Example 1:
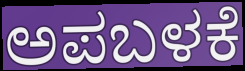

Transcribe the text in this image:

ಅಪಬಳಕೆ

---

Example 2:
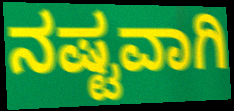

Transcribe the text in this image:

ನಷ್ಟವಾಗಿ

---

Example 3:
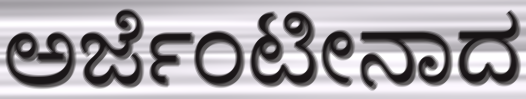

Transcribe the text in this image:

ಅರ್ಜೆಂಟೀನಾದ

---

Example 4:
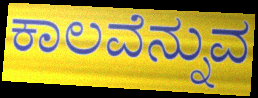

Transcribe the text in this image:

ಕಾಲವೆನ್ನುವ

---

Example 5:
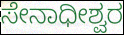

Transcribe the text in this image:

ಸೇನಾಧೀಶ್ವರ